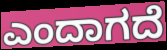
ಎಂದಾಗದೆ